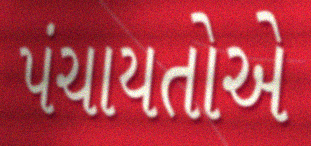
પંચાયતોએ